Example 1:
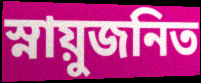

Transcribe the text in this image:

স্নায়ুজনিত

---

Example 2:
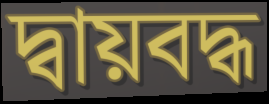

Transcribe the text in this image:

দ্বায়বদ্ধ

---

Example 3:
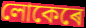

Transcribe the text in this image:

লোকেৰে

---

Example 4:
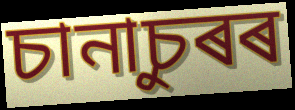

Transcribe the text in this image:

চানাচুৰৰ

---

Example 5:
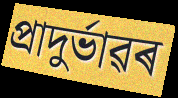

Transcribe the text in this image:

প্ৰাদুৰ্ভাৱৰ